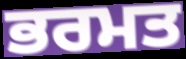
ਭਰਮਤ